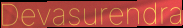
Devasurendra